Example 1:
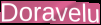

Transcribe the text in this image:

Doravelu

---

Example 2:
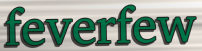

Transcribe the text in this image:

feverfew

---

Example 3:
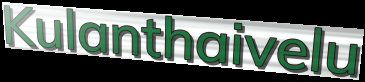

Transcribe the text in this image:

Kulanthaivelu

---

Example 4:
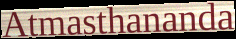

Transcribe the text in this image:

Atmasthananda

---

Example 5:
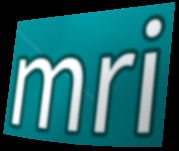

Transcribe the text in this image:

mri